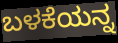
ಬಳಕೆಯನ್ನ